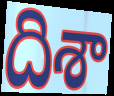
దిశా